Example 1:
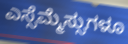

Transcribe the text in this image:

ಎಸ್ಸೆಮ್ಮೆಸ್ಸುಗಳೂ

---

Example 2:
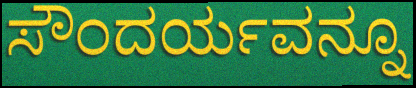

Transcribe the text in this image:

ಸೌಂದರ್ಯವನ್ನೂ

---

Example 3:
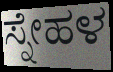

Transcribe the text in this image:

ಸ್ನೇಹಳ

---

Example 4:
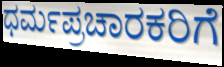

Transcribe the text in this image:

ಧರ್ಮಪ್ರಚಾರಕರಿಗೆ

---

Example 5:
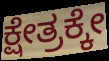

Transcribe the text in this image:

ಕ್ಷೇತ್ರಕ್ಕೇ